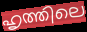
ഹൃത്തിലെ